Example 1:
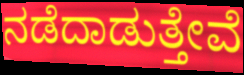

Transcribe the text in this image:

ನಡೆದಾಡುತ್ತೇವೆ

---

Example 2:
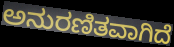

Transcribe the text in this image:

ಅನುರಣಿತವಾಗಿದೆ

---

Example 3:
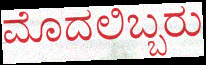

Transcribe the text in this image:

ಮೊದಲಿಬ್ಬರು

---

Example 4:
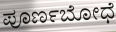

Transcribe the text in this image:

ಪೂರ್ಣಬೋಧೆ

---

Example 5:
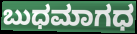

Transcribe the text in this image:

ಬುಧಮಾಗಧ